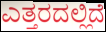
ಎತ್ತರದಲ್ಲಿದೆ